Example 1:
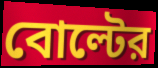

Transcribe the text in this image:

বোল্টের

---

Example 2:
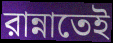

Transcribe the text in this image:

রান্নাতেই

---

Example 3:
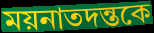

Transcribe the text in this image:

ময়নাতদন্তকে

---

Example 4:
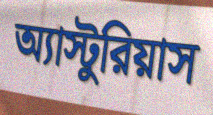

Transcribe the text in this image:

অ্যাস্টুরিয়াস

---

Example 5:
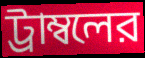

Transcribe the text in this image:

ট্রাম্বলের